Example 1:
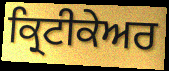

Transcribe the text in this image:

ਕ੍ਰਿਟੀਕੇਅਰ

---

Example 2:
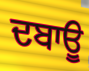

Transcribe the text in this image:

ਦਬਾਊ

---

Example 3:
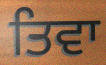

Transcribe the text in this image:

ਤਿਵਾ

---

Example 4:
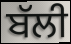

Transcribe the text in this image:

ਬੱਲੀ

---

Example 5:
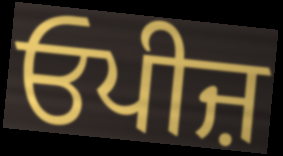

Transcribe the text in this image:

ਓਪੀਜ਼